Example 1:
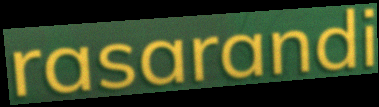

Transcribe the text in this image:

rasarandi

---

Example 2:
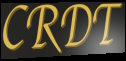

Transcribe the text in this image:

CRDT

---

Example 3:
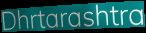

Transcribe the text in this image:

Dhrtarashtra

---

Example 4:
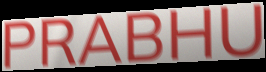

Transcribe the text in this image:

PRABHU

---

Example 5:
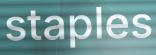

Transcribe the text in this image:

staples